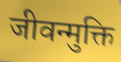
जीवन्मुक्ति